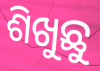
ଶିଖୁଛୁ